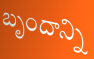
బృందాన్ని